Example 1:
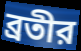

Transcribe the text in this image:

ব্রতীর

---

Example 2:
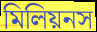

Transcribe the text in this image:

মিলিয়নস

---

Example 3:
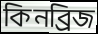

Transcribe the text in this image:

কিনব্রিজ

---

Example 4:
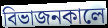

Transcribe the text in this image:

বিভাজনকালে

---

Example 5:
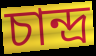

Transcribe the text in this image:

চান্দ্র